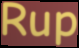
Rup